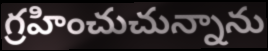
గ్రహించుచున్నాను